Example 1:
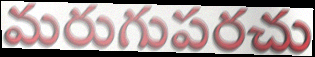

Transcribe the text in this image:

మరుగుపరచు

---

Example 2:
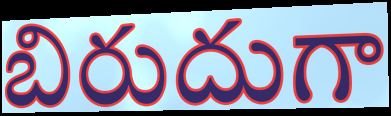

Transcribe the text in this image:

బిరుదుగా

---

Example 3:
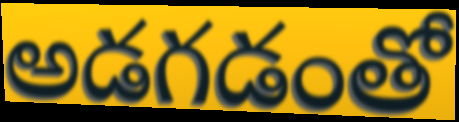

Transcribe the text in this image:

అడగడంతో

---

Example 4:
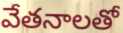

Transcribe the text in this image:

వేతనాలతో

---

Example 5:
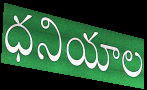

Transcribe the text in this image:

ధనియాల